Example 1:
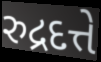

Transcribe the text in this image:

રુદ્રદત્તે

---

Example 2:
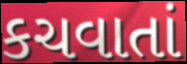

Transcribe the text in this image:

કચવાતાં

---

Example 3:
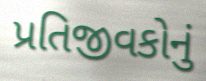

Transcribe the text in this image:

પ્રતિજીવકોનું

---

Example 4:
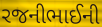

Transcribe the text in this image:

રજનીભાઈની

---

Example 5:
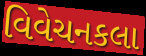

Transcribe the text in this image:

વિવેચનકલા